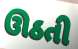
ઊઠતી